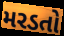
મરડતો